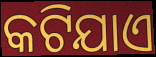
କଟିଯାଏ